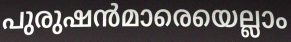
പുരുഷൻമാരെയെല്ലാം